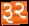
રૂર